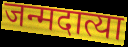
जन्मदात्या